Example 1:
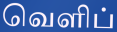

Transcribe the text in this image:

வெளிப்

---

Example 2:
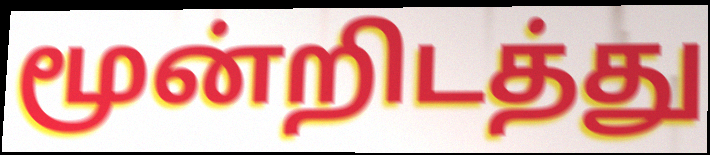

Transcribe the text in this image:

மூன்றிடத்து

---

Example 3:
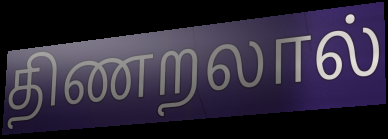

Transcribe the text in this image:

திணறலால்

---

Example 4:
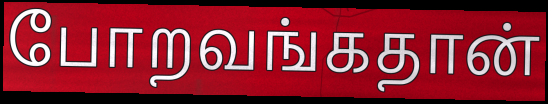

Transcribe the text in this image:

போறவங்கதான்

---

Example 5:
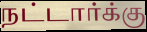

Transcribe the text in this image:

நட்டார்க்கு